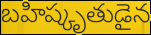
బహిష్కృతుడైన